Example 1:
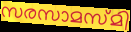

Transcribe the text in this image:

സരസാമസ്മി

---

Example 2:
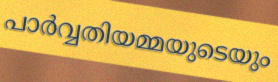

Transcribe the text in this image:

പാർവ്വതിയമ്മയുടെയും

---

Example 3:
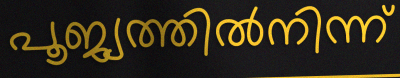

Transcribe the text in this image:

പൂജ്യത്തിൽനിന്ന്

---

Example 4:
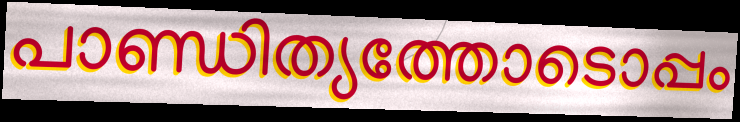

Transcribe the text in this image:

പാണ്ഡിത്യത്തോടൊപ്പം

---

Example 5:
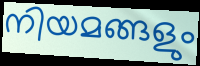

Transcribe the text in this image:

നിയമങ്ങളും